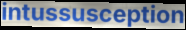
intussusception